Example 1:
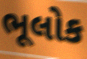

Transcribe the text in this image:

ભૂલોક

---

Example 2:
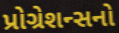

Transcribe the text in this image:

પ્રોગ્રેશન્સનો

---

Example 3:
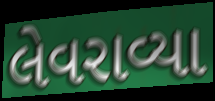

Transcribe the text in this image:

લેવરાવ્યા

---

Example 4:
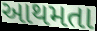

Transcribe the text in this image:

આથમતા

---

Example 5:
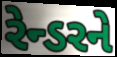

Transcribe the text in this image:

રેન્ડરને